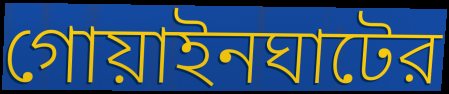
গোয়াইনঘাটের